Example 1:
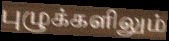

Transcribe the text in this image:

புழுக்களிலும்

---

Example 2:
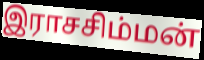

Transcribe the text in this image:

இராசசிம்மன்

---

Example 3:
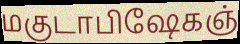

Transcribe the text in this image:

மகுடாபிஷேகஞ்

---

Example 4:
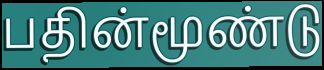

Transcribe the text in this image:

பதின்மூண்டு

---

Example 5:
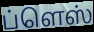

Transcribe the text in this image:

ப்ளெஸ்